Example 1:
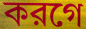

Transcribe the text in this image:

করগে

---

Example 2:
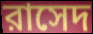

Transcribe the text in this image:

রাসেদ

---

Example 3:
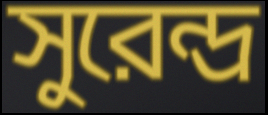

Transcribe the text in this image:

সুরেন্দ্র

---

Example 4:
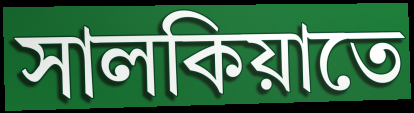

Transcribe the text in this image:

সালকিয়াতে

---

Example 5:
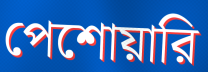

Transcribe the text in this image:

পেশোয়ারি